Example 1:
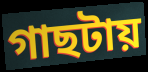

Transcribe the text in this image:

গাছটায়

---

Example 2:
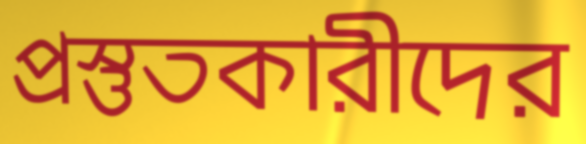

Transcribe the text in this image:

প্রস্তুতকারীদের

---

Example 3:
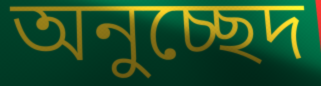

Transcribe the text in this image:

অনুচ্ছেদ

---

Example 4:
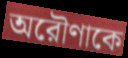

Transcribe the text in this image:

অরৌণাকে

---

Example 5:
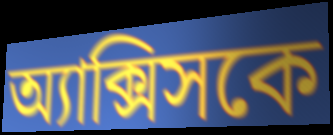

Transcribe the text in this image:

অ্যাক্সিসকে